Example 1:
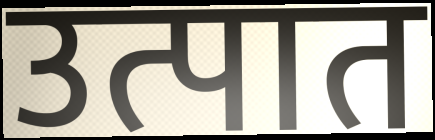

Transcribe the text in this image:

उत्पात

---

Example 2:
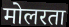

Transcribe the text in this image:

मोलरता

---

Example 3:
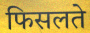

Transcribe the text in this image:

फिसलते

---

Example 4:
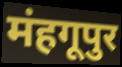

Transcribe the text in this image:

मंहगूपुर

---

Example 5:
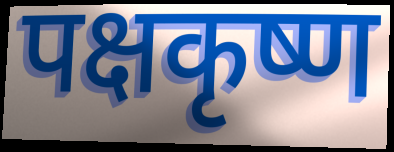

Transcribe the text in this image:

पक्षकृष्ण